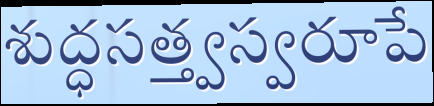
శుద్ధసత్త్వస్వరూపే